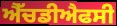
ਐੱਚਡੀਐਫਸੀ